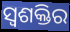
ସ୍ଵଶକ୍ତିର